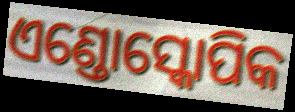
ଏଣ୍ଡୋସ୍କୋପିକ